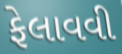
ફેલાવવી